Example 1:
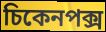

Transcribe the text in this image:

চিকেনপক্স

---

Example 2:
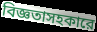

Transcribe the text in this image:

বিজ্ঞতাসহকারে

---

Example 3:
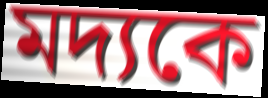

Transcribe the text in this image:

মদ্যকে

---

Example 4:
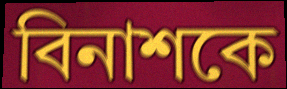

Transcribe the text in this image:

বিনাশকে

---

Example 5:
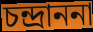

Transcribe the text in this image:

চন্দ্রাননা